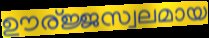
ഊര്ജ്ജസ്വലമായ